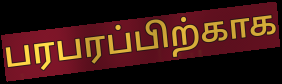
பரபரப்பிற்காக